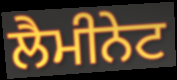
ਲੈਮੀਨੇਟ